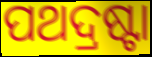
ପଥଦ୍ରଷ୍ଟା